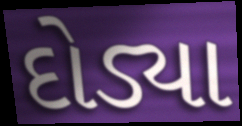
દોડ્યા